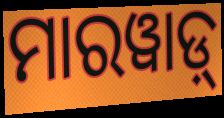
ମାରୱାଡ଼୍